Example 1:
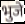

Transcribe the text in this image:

भुजे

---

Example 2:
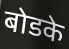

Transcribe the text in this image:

बोडके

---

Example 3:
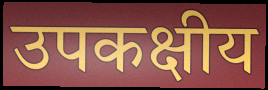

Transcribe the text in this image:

उपकक्षीय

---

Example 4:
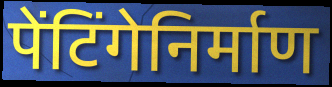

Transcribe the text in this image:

पेंटिंगेनिर्माण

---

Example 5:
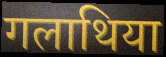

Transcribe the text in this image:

गलाथिया